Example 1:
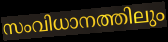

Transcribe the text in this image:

സംവിധാനത്തിലും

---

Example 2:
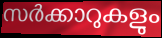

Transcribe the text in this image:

സർക്കാറുകളും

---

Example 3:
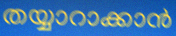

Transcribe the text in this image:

തയ്യാറാക്കാൻ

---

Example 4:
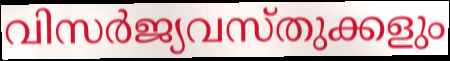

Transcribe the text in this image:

വിസർജ്യവസ്തുക്കളും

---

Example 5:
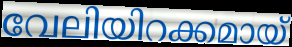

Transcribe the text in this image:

വേലിയിറക്കമായ്